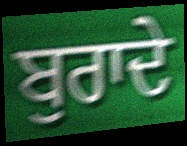
ਬੁਰਾਦੇ